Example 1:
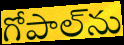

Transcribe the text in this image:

గోపాల్‌ను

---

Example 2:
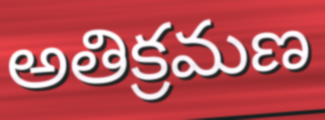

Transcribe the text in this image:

అతిక్రమణ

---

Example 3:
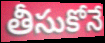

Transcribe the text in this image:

తీసుకోనే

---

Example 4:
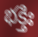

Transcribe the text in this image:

భక్తిః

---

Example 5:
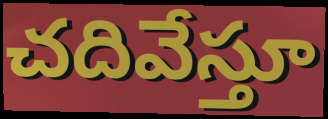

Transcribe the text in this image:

చదివేస్తూ